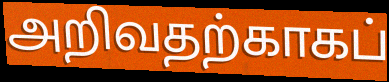
அறிவதற்காகப்